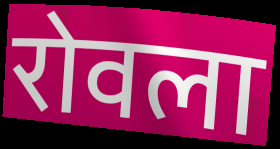
रोवला